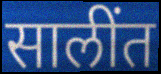
सालींत